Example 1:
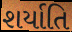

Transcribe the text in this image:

શર્યાતિ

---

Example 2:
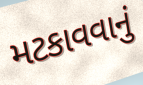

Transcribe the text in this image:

મટકાવવાનું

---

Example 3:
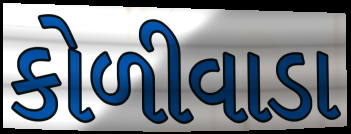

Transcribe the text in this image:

કોળીવાડા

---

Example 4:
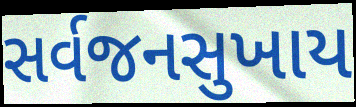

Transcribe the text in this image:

સર્વજનસુખાય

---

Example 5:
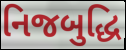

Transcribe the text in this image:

નિજબુદ્ધિ